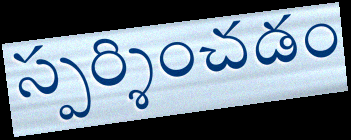
స్పర్శించడం